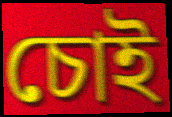
চোই